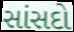
સાંસદો